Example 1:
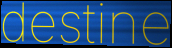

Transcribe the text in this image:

destine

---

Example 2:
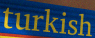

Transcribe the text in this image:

turkish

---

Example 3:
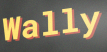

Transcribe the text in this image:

Wally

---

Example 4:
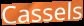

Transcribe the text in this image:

Cassels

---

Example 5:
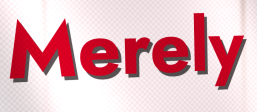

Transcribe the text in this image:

Merely